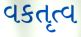
વકતૃત્વ